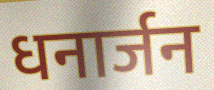
धनार्जन